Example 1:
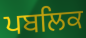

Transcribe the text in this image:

ਪਬਲਿਕ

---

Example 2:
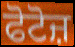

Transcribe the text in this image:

ਫੋਟੋਜ਼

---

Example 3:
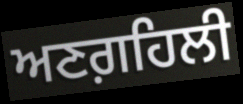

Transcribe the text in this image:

ਅਣਗ਼ਹਿਲੀ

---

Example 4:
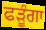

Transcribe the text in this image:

ਫੜੂੰਗਾ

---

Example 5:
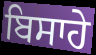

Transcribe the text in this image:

ਬਿਸਾਹੇ